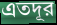
এতদূর